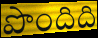
పొందిది